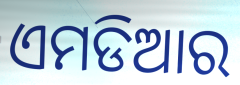
ଏମଡିଆର